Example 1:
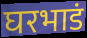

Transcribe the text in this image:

घरभाडं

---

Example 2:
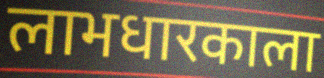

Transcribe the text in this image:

लाभधारकाला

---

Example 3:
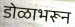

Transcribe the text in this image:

डोळाभरून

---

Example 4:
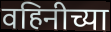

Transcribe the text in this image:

वहिनीच्या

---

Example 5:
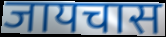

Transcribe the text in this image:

जायचास